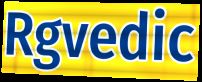
Rgvedic